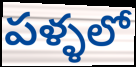
పళ్ళలో